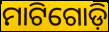
ମାଟିଗୋଡ଼ି